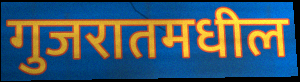
गुजरातमधील